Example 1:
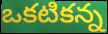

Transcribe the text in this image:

ఒకటికన్న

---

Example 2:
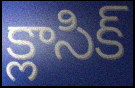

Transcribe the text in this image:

క్లాసిక్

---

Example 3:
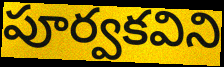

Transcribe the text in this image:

పూర్వకవిని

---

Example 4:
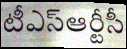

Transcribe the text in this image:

టీఎస్ఆర్టీసీ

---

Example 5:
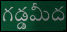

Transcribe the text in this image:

గడ్డమీద